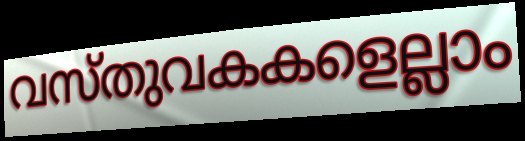
വസ്തുവകകളെല്ലാം